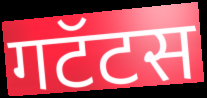
गटॅटस